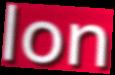
Ion